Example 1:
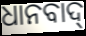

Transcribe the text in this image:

ଧାନବାଦ୍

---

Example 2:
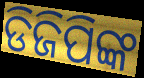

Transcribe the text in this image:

ଡିଜିପିଙ୍କ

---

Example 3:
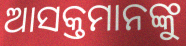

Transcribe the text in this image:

ଆସକ୍ତମାନଙ୍କୁ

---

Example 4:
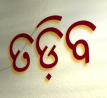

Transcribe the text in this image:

ତଡ଼ିବ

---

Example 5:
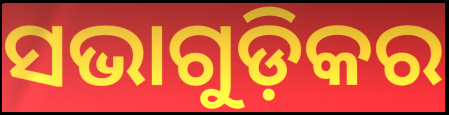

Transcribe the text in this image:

ସଭାଗୁଡ଼ିକର